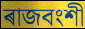
ৰাজবংশী